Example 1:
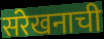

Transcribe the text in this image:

संरेखनाची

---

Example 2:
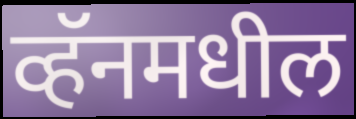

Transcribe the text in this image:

व्हॅनमधील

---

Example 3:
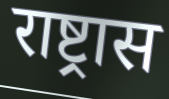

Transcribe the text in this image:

राष्ट्रास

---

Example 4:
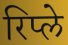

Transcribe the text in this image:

रिप्ले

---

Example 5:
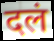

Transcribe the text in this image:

दलं